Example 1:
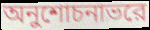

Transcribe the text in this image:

অনুশোচনাভরে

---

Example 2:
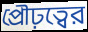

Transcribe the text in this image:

প্রৌঢ়ত্বের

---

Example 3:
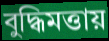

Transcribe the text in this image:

বুদ্ধিমত্তায়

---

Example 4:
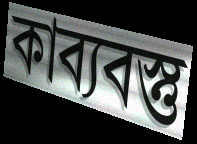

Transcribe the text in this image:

কাব্যবস্তু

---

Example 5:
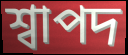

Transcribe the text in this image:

শ্বাপদ